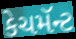
કેચમૅન્ટ